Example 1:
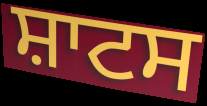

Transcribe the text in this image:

ਸ਼ਾਟਸ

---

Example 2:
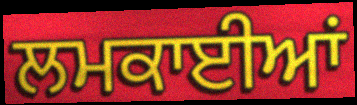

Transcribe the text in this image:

ਲਮਕਾਈਆਂ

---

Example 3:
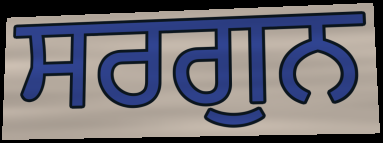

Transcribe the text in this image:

ਸਰਗੁਨ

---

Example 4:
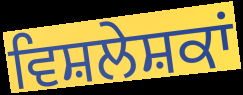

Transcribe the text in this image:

ਵਿਸ਼ਲੇਸ਼ਕਾਂ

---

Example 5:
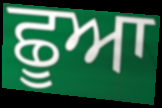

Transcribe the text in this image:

ਛੂਆ